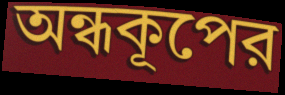
অন্ধকূপের